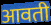
आवती